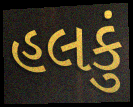
હલકું